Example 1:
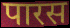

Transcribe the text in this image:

पारस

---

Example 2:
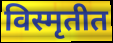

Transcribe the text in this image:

विस्मृतीत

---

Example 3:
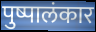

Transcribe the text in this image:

पुष्पालंकार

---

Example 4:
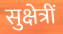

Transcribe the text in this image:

सुक्षेत्रीं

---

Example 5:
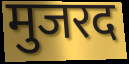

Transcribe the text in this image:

मुजरद